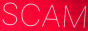
SCAM